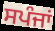
ਸਪੰਜਾਂ